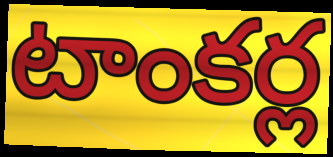
టాంకర్ల